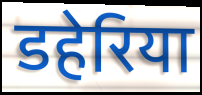
डहेरिया